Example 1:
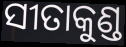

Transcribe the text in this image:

ସୀତାକୁଣ୍ଡ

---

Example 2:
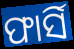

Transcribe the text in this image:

ଫାର୍ସି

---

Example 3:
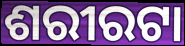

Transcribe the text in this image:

ଶରୀରଟା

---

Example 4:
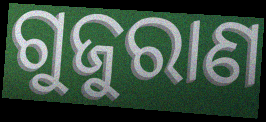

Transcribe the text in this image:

ଗୁଜୁରାଣ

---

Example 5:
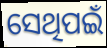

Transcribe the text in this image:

ସେଥିପଇଁ